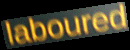
laboured